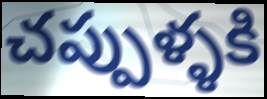
చప్పుళ్ళకి